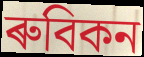
ৰুবিকন